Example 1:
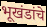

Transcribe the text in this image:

भूखंडांचे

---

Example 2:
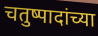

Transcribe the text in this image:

चतुष्पादांच्या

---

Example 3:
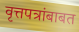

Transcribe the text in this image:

वृत्तपत्रांबाबत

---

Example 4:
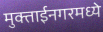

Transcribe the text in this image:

मुक्ताईनगरमध्ये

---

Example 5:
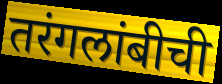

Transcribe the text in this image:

तरंगलांबीची